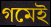
গমেই